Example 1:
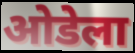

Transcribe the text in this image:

ओडेला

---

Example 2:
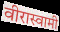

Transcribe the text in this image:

वीरास्वामी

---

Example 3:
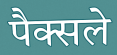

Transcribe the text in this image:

पैक्सले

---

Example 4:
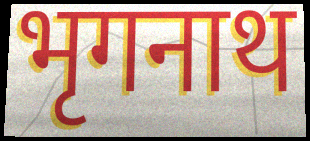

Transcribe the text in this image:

भृगनाथ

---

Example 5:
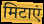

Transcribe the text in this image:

मिटाएं